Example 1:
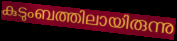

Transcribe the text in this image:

കുടുംബത്തിലായിരുന്നു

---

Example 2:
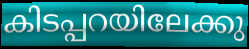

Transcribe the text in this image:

കിടപ്പറയിലേക്കു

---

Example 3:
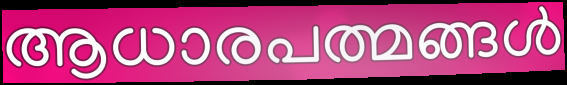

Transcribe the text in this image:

ആധാരപത്മങ്ങൾ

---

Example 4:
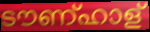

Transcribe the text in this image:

ടൗണ്ഹാള്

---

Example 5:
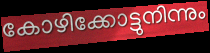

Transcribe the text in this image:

കോഴിക്കോട്ടുനിന്നും